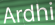
Ardhi